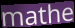
mathe